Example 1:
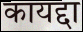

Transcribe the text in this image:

कायद्दा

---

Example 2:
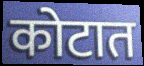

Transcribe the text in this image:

कोटात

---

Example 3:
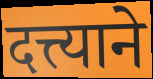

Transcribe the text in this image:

दत्त्याने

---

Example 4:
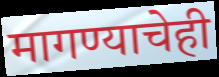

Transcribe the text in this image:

मागण्याचेही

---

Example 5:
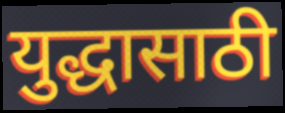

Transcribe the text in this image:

युद्धासाठी